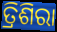
ତ୍ରିଶିରା